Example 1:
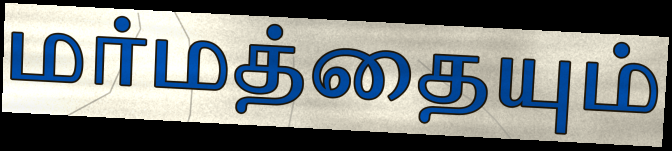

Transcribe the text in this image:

மர்மத்தையும்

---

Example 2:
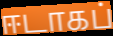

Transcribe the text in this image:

ஈடாகப்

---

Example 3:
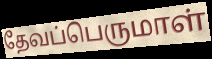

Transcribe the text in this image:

தேவப்பெருமாள்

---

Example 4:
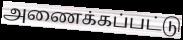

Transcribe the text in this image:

அணைக்கப்பட்டு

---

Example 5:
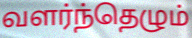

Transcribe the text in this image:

வளர்ந்தெழும்